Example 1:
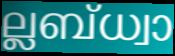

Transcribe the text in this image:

ല്ലബ്ധ്വാ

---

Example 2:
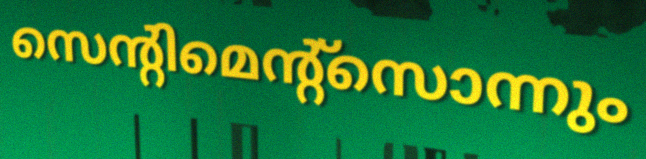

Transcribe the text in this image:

സെന്റിമെന്റ്സൊന്നും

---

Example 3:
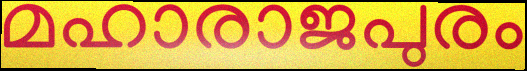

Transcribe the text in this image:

മഹാരാജപുരം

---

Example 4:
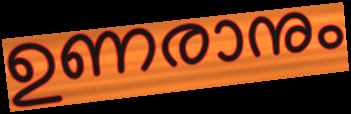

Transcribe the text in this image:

ഉണരാനും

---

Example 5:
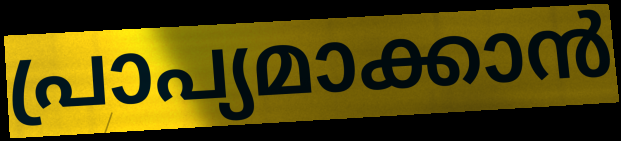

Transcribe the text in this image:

പ്രാപ്യമാക്കാൻ